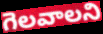
గెలవాలని